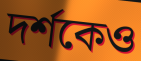
দৰ্শকেও